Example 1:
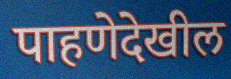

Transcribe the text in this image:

पाहणेदेखील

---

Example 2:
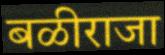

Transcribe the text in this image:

बळीराजा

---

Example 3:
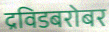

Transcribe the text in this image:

द्रविडबरोबर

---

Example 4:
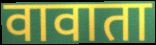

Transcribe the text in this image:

वावाता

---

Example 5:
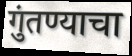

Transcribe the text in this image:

गुंतण्याचा